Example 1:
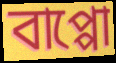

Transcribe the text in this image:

বাপ্পো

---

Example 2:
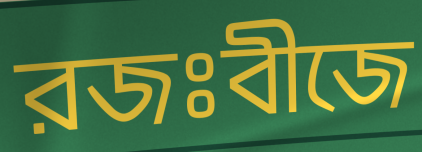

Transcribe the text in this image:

রজঃবীজে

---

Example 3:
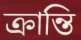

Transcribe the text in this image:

ক্রান্তি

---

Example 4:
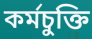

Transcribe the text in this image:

কর্মচুক্তি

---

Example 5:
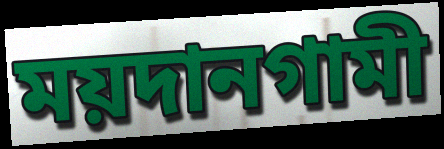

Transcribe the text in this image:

ময়দানগামী